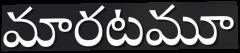
మారటమూ